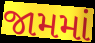
જામમાં